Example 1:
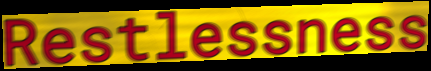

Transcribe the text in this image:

Restlessness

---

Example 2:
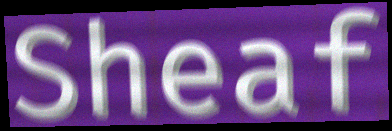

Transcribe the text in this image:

Sheaf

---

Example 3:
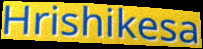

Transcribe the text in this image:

Hrishikesa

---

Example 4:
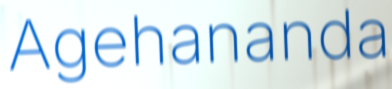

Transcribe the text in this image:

Agehananda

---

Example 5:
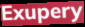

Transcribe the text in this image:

Exupery